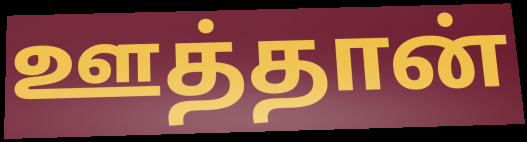
ஊத்தான்